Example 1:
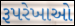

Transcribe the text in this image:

રૂપરેખાઓ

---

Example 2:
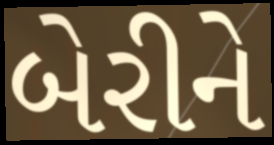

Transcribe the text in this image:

બેરીને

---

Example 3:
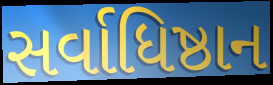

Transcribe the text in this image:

સર્વાધિષ્ઠાન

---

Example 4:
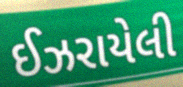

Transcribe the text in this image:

ઈઝરાયેલી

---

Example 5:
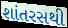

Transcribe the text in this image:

શાંતરસથી